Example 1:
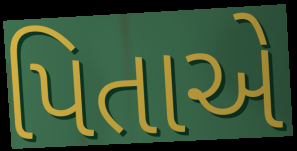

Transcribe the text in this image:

પિતાએ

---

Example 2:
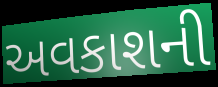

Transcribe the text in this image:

અવકાશની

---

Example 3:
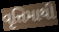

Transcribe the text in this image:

વૃત્તિમાથી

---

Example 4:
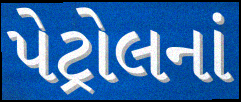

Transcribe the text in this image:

પેટ્રોલનાં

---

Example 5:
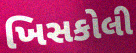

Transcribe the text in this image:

ખિસકોલી